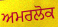
ਅਮਰਲੋਕ